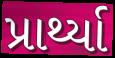
પ્રાર્થ્યા